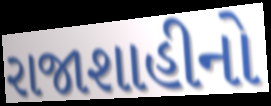
રાજાશાહીનો